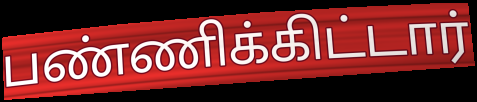
பண்ணிக்கிட்டார்